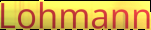
Lohmann